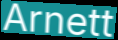
Arnett